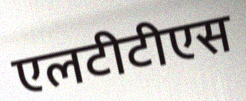
एलटीटीएस